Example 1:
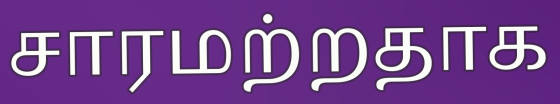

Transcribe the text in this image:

சாரமற்றதாக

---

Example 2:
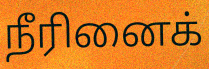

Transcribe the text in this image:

நீரினைக்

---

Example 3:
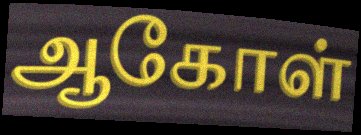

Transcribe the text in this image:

ஆகோள்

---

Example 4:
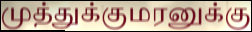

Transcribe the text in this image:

முத்துக்குமரனுக்கு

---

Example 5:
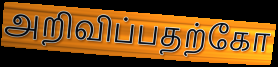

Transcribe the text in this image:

அறிவிப்பதற்கோ